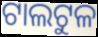
ଟାଲଟୁଳ